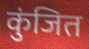
कुंजित